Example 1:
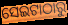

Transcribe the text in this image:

ସେଇଟାଠାରୁ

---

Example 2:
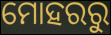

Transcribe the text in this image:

ମୋହରରୁ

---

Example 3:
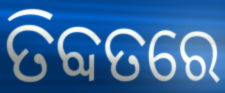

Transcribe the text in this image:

ତିବ୍ଦତରେ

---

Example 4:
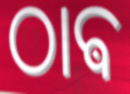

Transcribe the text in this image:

ଠାଵ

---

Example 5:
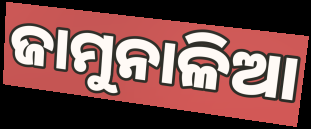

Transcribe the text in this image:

ଜାମୁନାଳିଆ